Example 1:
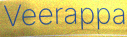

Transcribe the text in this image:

Veerappa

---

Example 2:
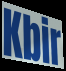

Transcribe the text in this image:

Kbir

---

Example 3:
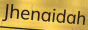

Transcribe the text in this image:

Jhenaidah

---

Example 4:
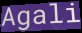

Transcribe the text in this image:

Agali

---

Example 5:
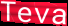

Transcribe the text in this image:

Teva